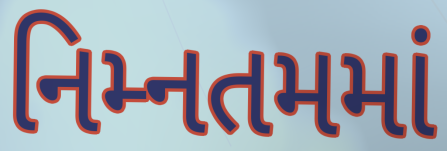
નિમ્નતમમાં